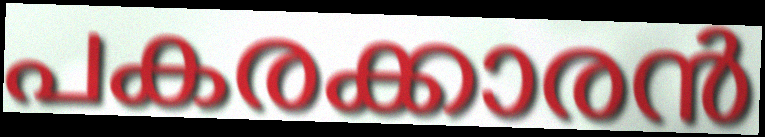
പകരക്കാരൻ